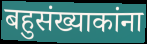
बहुसंख्याकांना